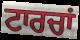
ਟਾਰਚਾਂ